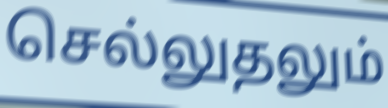
செல்லுதலும்